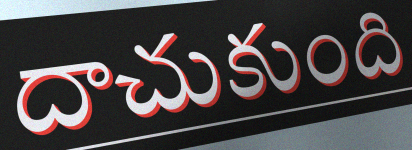
దాచుకుంది